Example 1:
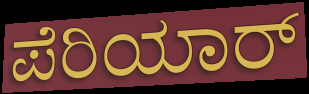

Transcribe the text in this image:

ಪೆರಿಯಾರ್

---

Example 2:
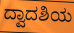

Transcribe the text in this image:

ದ್ವಾದಶಿಯ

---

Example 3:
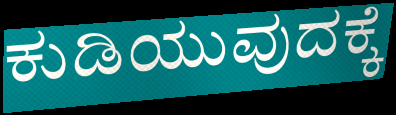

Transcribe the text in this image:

ಕುಡಿಯುವುದಕ್ಕೆ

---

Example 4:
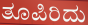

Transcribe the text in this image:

ತೂಪಿರಿದು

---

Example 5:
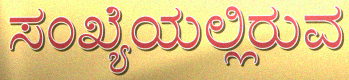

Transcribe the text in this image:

ಸಂಖ್ಯೆಯಲ್ಲಿರುವ